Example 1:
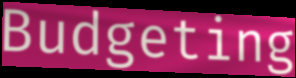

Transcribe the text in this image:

Budgeting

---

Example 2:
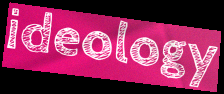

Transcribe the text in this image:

ideology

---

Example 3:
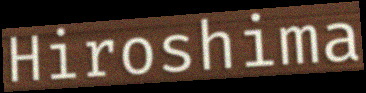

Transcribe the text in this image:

Hiroshima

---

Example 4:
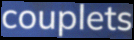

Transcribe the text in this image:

couplets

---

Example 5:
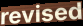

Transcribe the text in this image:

revised